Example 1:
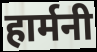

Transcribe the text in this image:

हार्मनी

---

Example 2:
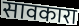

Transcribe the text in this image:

सावकारा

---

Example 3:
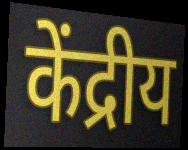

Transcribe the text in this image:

केंद्रीय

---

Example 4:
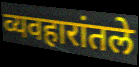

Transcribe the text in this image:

व्यवहारांतले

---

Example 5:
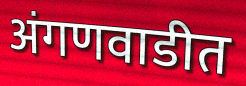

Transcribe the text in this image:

अंगणवाडीत